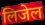
लिजेल